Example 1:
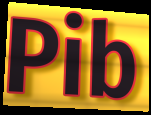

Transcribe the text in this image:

Pib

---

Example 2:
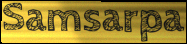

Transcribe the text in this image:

Samsarpa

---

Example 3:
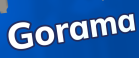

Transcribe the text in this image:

Gorama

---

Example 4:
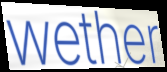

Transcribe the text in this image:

wether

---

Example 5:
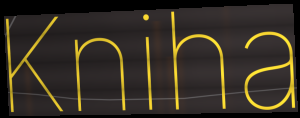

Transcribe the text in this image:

Kniha